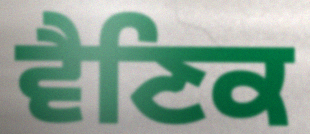
ਵੈਣਿਕ